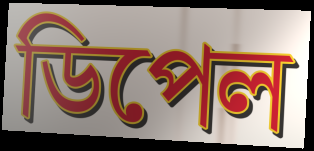
ডিপেল